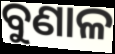
ବୁଣାଳ